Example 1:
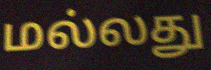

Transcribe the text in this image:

மல்லது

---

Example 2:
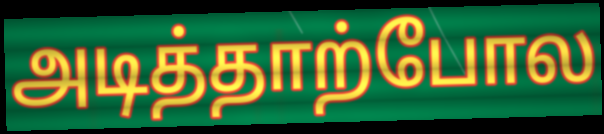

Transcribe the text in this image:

அடித்தாற்போல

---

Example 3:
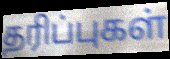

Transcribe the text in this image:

தரிப்புகள்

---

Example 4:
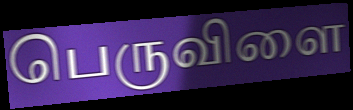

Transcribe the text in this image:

பெருவிளை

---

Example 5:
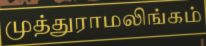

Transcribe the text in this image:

முத்துராமலிங்கம்